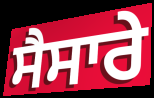
ਸੈਸਾਰੇ